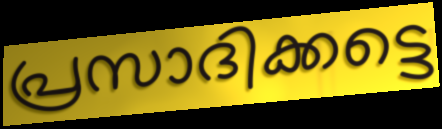
പ്രസാദിക്കട്ടെ